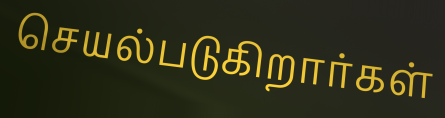
செயல்படுகிறார்கள்